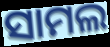
ସାମଲ